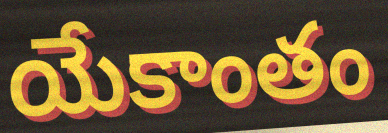
యేకాంతం